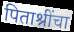
पिताश्रींचा